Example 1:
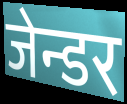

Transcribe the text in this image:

जेन्डर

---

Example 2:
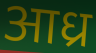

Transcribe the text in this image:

आध्र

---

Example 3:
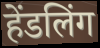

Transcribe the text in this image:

हेंडलिंग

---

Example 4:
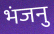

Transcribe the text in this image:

भंजनु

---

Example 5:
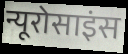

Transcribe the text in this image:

न्यूरोसाइंस